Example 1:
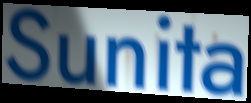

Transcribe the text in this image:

Sunita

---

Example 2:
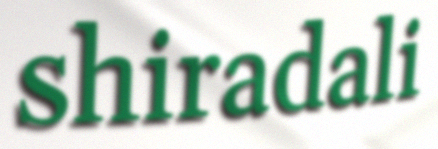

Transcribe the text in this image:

shiradali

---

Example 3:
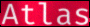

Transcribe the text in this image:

Atlas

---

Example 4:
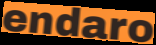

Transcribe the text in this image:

endaro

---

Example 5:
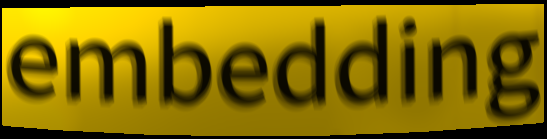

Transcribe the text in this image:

embedding